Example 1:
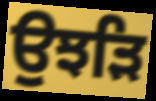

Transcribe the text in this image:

ਉਝੜਿ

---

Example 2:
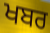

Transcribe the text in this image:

ਖਬਰ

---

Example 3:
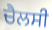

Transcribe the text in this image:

ਚੈਲਸੀ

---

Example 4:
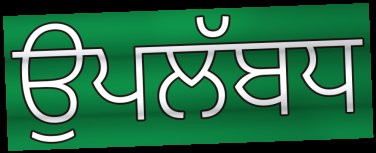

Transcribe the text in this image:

ਉਪਲੱਬਧ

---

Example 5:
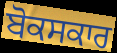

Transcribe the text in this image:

ਬੋਕਸਕਾਰ